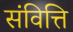
संवित्ति